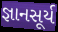
જ્ઞાનસૂર્ય